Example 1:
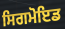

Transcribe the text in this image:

ਸਿਗਮੋਇਡ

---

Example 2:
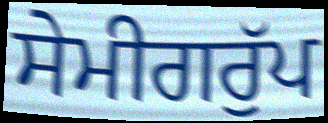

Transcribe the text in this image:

ਸੇਮੀਗਰੁੱਪ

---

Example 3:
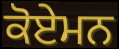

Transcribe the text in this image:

ਕੋਏਮਨ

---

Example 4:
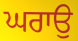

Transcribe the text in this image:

ਘਰਾਉ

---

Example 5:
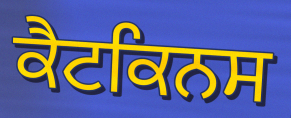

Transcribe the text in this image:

ਕੈਟਕਿਨਸ